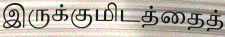
இருக்குமிடத்தைத்